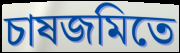
চাষজমিতে